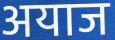
अयाज